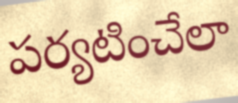
పర్యటించేలా